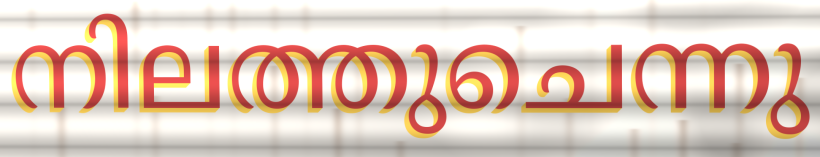
നിലത്തുചെന്നു